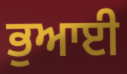
ਭੁਆਈ